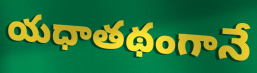
యధాతథంగానే